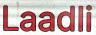
Laadli